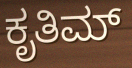
ಕೃತಿಮ್